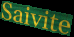
Saivite